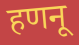
हणनू